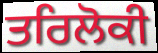
ਤਰਿਲੋਕੀ